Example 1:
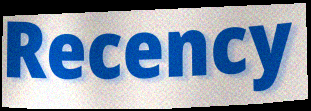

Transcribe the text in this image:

Recency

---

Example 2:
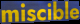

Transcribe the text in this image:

miscible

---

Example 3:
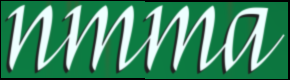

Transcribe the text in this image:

nmma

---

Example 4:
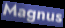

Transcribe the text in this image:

Magnus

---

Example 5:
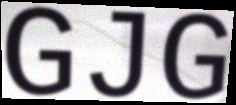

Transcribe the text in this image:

GJG